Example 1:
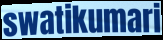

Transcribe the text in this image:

swatikumari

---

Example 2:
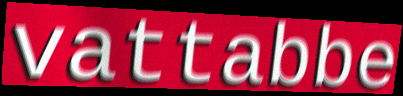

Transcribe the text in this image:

vattabbe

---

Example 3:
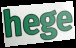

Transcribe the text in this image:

hege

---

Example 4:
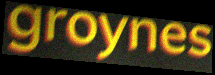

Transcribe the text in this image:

groynes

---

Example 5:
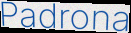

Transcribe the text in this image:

Padrona